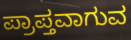
ಪ್ರಾಪ್ತವಾಗುವ